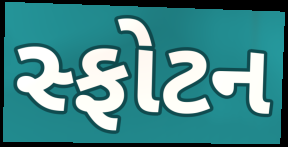
સ્ફોટન